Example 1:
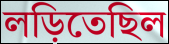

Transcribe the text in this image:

লড়িতেছিল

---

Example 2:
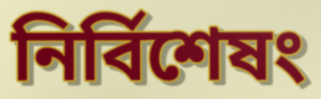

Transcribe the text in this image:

নির্বিশেষং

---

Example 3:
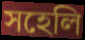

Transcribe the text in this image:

সহেলি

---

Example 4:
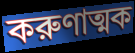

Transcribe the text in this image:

করুণাত্মক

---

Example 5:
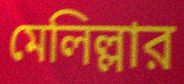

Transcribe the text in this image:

মেলিল্লার